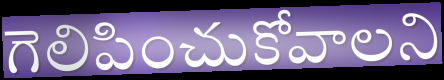
గెలిపించుకోవాలని